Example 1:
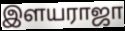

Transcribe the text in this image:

இளயராஜா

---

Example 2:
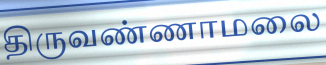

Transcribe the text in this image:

திருவண்ணாமலை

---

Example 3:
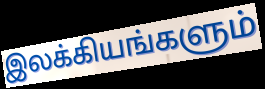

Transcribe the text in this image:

இலக்கியங்களும்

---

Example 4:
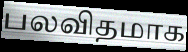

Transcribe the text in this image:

பலவிதமாக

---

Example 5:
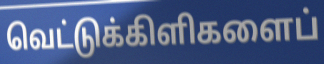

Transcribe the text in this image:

வெட்டுக்கிளிகளைப்